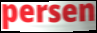
persen